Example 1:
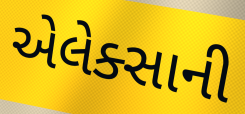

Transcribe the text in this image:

એલેક્સાની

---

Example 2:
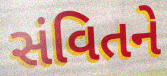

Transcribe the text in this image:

સંવિતને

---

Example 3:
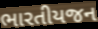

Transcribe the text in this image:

ભારતીયજન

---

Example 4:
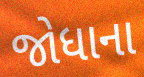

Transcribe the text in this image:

જોધાના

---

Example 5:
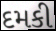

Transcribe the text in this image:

દમકી